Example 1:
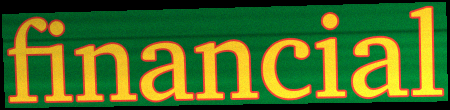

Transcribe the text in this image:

financial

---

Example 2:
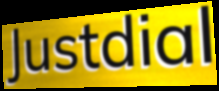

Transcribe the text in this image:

Justdial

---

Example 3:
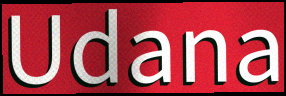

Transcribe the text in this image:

Udana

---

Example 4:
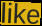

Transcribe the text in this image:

like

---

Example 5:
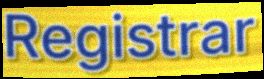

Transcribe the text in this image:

Registrar